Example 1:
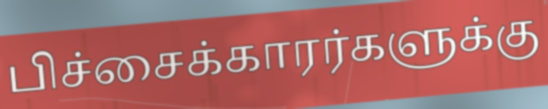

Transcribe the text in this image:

பிச்சைக்காரர்களுக்கு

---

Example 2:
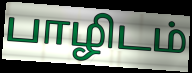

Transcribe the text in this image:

பாழிடம்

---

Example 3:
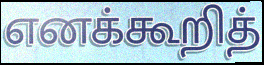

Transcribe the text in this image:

எனக்கூறித்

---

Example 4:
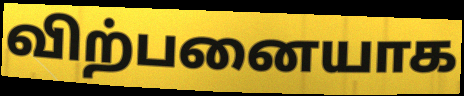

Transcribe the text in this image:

விற்பனையாக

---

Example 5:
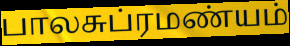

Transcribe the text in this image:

பாலசுப்ரமண்யம்